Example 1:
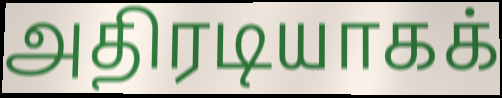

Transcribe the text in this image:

அதிரடியாகக்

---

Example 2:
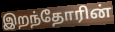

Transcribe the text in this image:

இறந்தோரின்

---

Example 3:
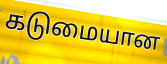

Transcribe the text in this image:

கடுமையான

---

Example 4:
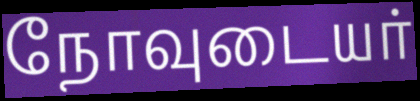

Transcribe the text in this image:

நோவுடையர்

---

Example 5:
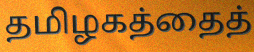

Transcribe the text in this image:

தமிழகத்தைத்